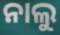
ନାଲୁ